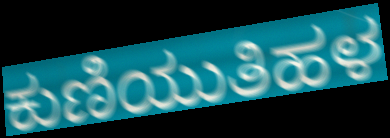
ಕುಣಿಯುತಿಹಳ